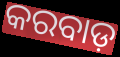
କରବାଡ଼